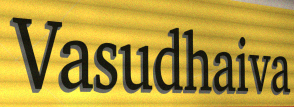
Vasudhaiva